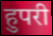
हुपरी